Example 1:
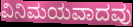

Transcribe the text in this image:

ವಿನಿಮಯವಾದವು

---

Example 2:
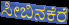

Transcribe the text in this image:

ಸೀಬಿನಕೆರೆ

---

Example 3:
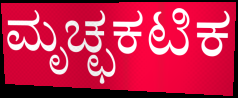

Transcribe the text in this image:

ಮೃಚ್ಛಕಟಿಕ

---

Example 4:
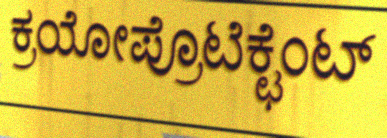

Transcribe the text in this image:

ಕ್ರಯೋಪ್ರೊಟೆಕ್ಟೆಂಟ್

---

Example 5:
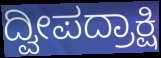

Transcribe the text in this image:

ದ್ವೀಪದ್ರಾಕ್ಷಿ